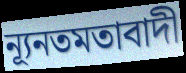
ন্যূনতমতাবাদী